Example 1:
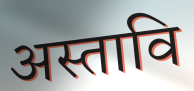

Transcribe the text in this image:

अस्तावि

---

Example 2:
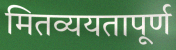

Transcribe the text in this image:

मितव्ययतापूर्ण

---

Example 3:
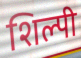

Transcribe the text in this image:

शिल्पी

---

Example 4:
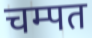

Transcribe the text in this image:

चम्पत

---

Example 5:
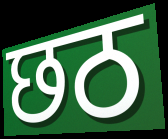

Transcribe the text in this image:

छठ